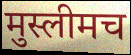
मुस्लीमच